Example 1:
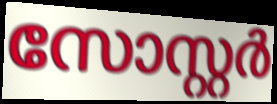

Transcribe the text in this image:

സോസ്റ്റർ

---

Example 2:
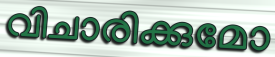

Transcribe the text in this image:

വിചാരിക്കുമോ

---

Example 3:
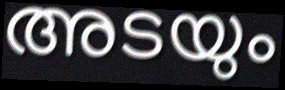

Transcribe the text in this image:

അടയും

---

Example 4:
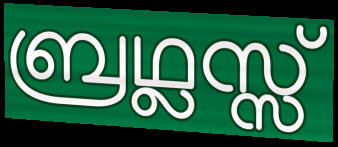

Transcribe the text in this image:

ബ്രഥ്ലസ്സ്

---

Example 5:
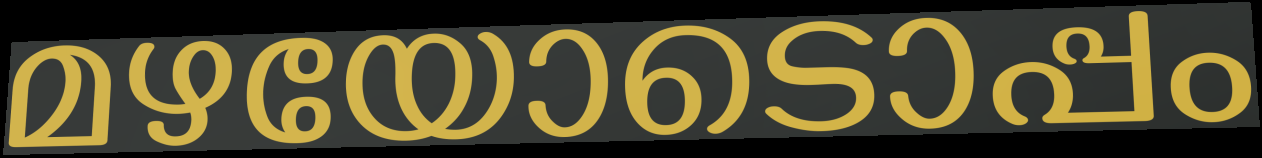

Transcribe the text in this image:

മഴയോടൊപ്പം